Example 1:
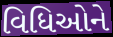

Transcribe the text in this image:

વિધિઓને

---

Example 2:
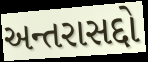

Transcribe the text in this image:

અન્તરાસદ્દો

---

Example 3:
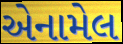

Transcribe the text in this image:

એનામેલ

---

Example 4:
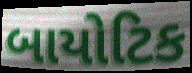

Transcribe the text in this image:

બાયોટિક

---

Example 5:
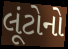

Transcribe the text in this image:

લૂંટોનો